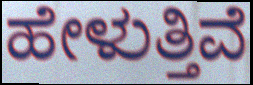
ಹೇಳುತ್ತಿವೆ